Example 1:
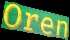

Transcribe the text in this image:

Oren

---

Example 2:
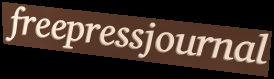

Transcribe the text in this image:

freepressjournal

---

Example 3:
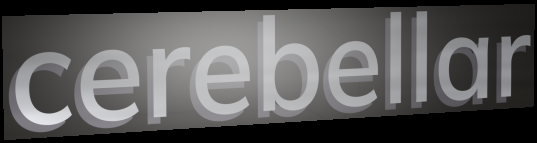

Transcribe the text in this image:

cerebellar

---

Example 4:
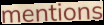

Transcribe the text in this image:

mentions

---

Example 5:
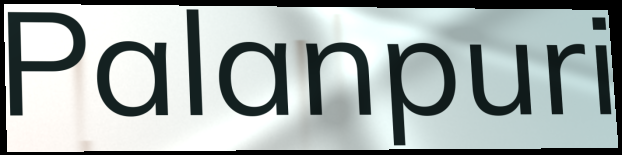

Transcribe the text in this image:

Palanpuri